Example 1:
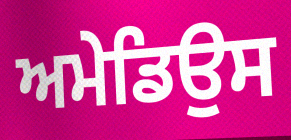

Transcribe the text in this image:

ਅਮੇਡਿਉਸ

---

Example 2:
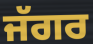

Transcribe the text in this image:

ਜੱਗਰ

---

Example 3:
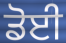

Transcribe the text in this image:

ਡੋਈ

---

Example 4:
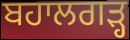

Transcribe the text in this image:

ਬਹਾਲਗੜ੍ਹ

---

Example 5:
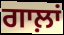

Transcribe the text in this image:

ਗਾਲ਼ਾਂ